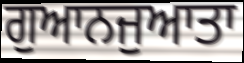
ਗੁਆਨਜੁਆਤਾ